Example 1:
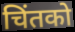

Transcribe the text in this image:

चिंतको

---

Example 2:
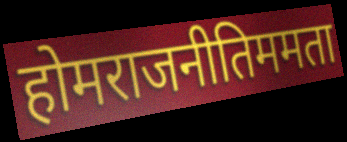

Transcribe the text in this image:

होमराजनीतिममता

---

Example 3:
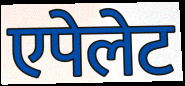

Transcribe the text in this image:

एपेलेट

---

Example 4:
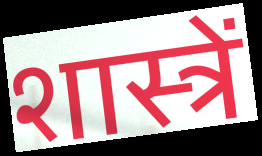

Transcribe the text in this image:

शास्त्रें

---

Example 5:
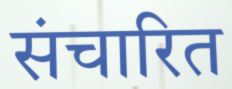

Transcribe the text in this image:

संचारित